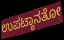
ಉಪಟ್ಠಾನತೋ